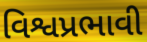
વિશ્વપ્રભાવી